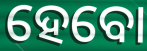
ହେବୋ